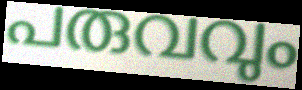
പരുവവും